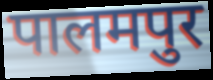
पालमपुर